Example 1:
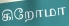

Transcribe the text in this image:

கிறோமா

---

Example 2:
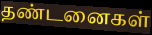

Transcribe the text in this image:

தண்டனைகள்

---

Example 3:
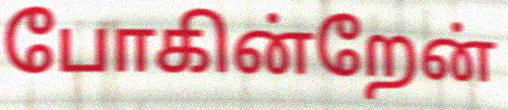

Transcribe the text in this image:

போகின்றேன்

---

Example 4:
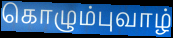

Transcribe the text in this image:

கொழும்புவாழ்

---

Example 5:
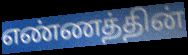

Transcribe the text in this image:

எண்ணத்தின்